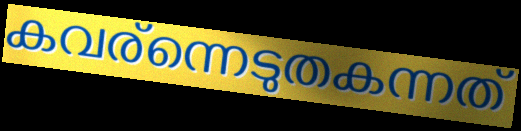
കവര്ന്നെടുതകന്നത്